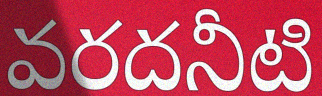
వరదనీటి